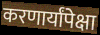
करणार्यांपेक्षा